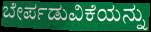
ಬೇರ್ಪಡುವಿಕೆಯನ್ನು